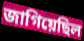
জাগিয়েছিল